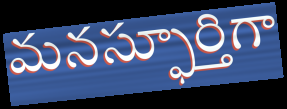
మనస్ఫూర్తిగా